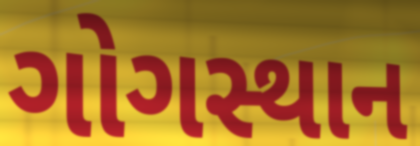
ગોગસ્થાન